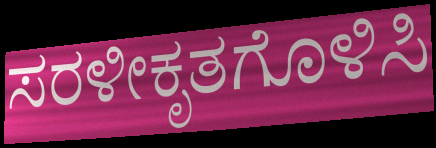
ಸರಳೀಕೃತಗೊಳಿಸಿ